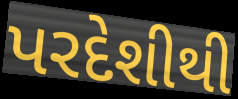
પરદેશીથી